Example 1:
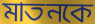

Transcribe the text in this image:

মাতনকে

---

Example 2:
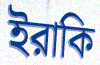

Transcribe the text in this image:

ইরাকি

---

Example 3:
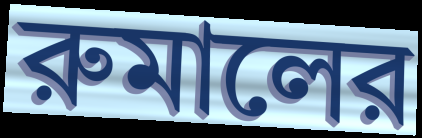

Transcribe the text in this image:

রুমালের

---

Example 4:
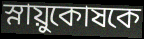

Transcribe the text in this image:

স্নায়ুকোষকে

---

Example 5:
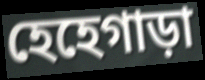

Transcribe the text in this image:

হেহেগাড়া